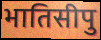
भातिसीपु